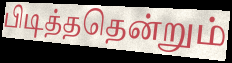
பிடித்ததென்றும்